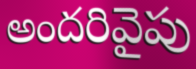
అందరివైపు